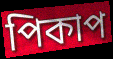
পিকাপ